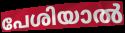
പേശിയാൽ